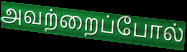
அவற்றைப்போல்